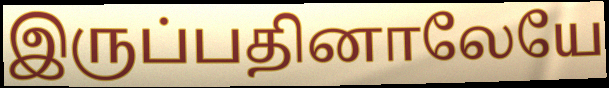
இருப்பதினாலேயே